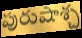
పురుషాశ్చ